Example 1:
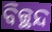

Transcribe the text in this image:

ବିଚ୍ଛନ୍ଦ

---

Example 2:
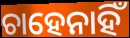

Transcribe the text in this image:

ଚାହେନାହିଁ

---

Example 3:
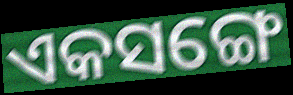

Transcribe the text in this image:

ଏକସଙ୍ଗେ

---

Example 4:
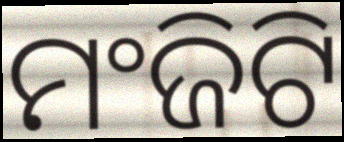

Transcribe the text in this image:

ମଂଜିଟି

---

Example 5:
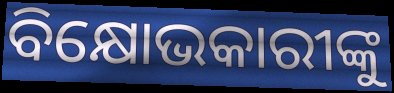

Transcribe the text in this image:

ବିକ୍ଷୋଭକାରୀଙ୍କୁ